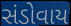
સંડોવાય